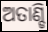
ଅତାଣ୍ଡି